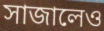
সাজালেও